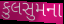
કુલસુમના